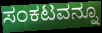
ಸಂಕಟವನ್ನೂ